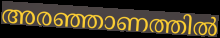
അരഞ്ഞാണത്തിൽ